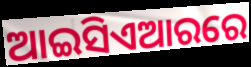
ଆଇସିଏଆରରେ